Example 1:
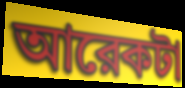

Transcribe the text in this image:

আরেকটা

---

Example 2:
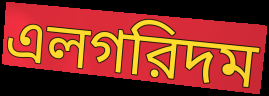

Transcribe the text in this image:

এলগরিদম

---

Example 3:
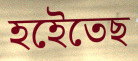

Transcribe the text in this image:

হইেতেছ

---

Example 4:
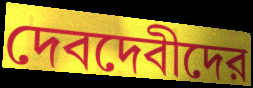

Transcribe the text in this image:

দেবদেবীদের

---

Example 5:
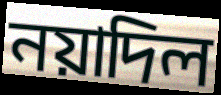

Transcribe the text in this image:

নয়াদিল